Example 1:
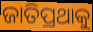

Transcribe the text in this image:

ଜାତିପ୍ରଥାକୁ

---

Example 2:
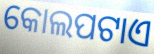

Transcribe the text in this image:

କୋଲପଟାଏ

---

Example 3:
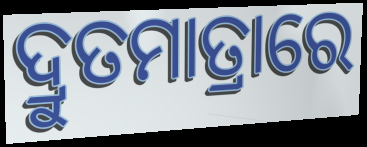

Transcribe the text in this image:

ଦ୍ରୁତମାତ୍ରାରେ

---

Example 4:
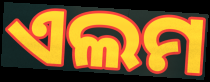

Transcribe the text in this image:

ଏଲମ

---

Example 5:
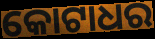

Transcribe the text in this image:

କୋଟାଧର